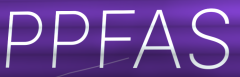
PPFAS